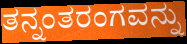
ತನ್ನಂತರಂಗವನ್ನು